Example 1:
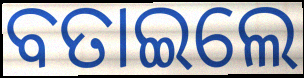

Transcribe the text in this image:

ବତାଇଲେ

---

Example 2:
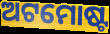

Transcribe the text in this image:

ଅଟମୋଷ୍ଟ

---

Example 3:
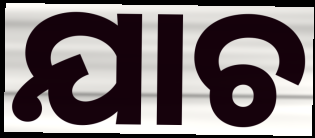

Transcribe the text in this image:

ଯାଚ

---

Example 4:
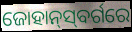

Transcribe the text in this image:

ଜୋହାନ୍‌ସ୍‌ବର୍ଗରେ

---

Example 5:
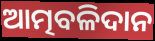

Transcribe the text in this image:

ଆତ୍ମବଳିଦାନ